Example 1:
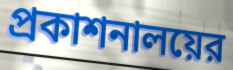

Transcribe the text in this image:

প্রকাশনালয়ের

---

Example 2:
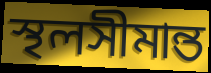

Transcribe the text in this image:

স্থলসীমান্ত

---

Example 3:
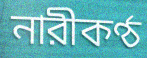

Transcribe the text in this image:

নারীকণ্ঠ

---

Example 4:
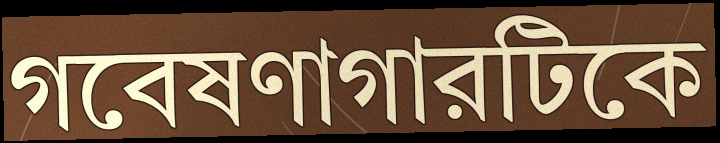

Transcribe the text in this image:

গবেষণাগারটিকে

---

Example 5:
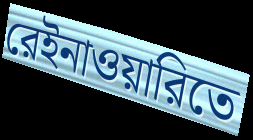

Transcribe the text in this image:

রেইনাওয়ারিতে